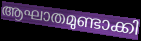
ആഘാതമുണ്ടാക്കി